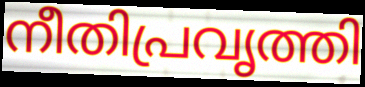
നീതിപ്രവൃത്തി